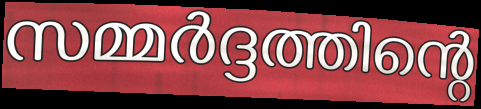
സമ്മർദ്ദത്തിന്റെ